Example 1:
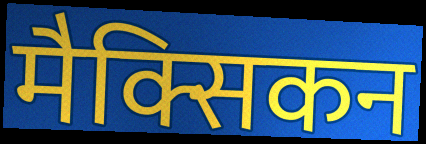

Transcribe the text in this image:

मैक्सिकन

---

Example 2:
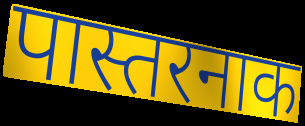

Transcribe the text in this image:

पास्तरनाक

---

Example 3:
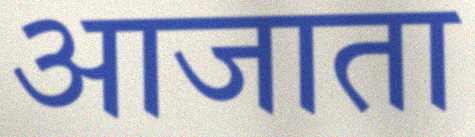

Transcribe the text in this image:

आजाता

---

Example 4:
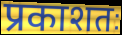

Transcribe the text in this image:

प्रकाशतः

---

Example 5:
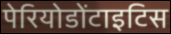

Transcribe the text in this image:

पेरियोडोंटाइटिस